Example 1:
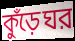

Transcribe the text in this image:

কুঁড়েঘর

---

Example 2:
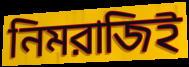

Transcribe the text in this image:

নিমরাজিই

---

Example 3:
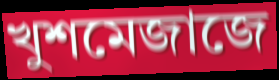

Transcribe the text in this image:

খুশমেজাজে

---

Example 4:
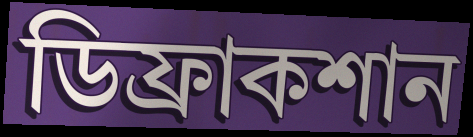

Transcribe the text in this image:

ডিফ্রাকশান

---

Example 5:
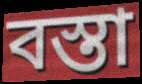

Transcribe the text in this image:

বস্তা